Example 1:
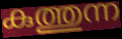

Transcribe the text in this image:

കുത്തുന്ന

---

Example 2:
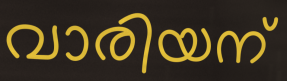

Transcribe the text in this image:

വാരിയന്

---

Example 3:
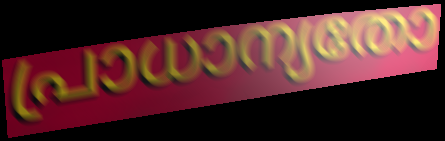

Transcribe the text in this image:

പ്രാധാന്യതോ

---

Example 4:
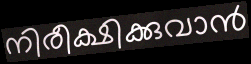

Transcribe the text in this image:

നിരീക്ഷിക്കുവാൻ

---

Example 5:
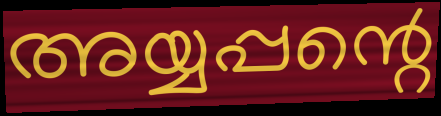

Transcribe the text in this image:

അയ്യപ്പന്റെ